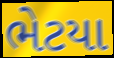
ભેટયા